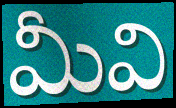
మీవి